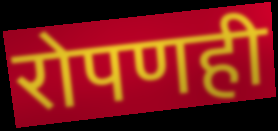
रोपणही